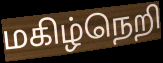
மகிழ்நெறி